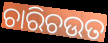
ଚାରିଚଉତ